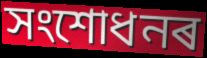
সংশোধনৰ